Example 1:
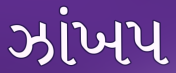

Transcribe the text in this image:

ઝાંખપ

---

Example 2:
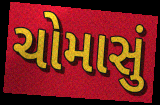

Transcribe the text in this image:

ચોમાસું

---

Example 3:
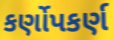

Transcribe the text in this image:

કર્ણોપકર્ણ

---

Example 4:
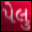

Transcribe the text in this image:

પેલુ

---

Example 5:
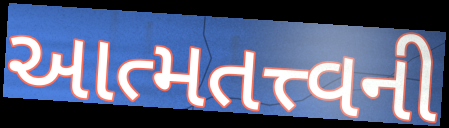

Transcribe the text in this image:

આત્મતત્ત્વની